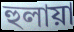
হুলায়া